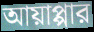
আয়াপ্পার